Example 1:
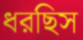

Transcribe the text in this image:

ধরছিস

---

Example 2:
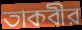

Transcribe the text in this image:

তাকবীর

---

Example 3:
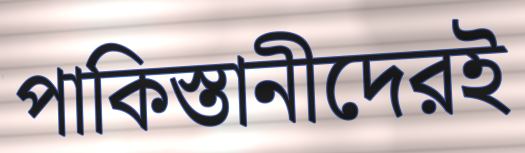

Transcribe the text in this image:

পাকিস্তানীদেরই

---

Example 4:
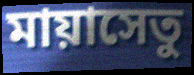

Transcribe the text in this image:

মায়াসেতু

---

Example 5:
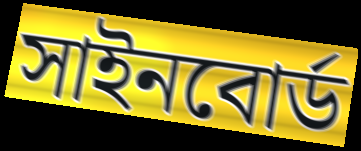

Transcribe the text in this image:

সাইনবোর্ড